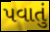
પવાતું